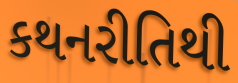
કથનરીતિથી